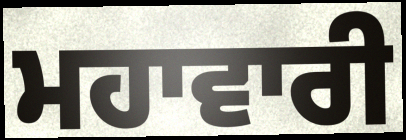
ਮਹਾਵਾਰੀ